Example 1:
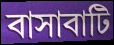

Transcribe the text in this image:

বাসাবাটি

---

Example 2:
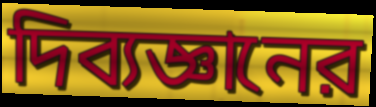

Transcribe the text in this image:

দিব্যজ্ঞানের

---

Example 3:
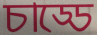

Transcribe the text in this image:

চাড্ডে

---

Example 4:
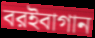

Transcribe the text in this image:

বরইবাগান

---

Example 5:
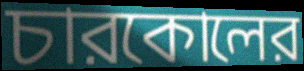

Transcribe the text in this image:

চারকোলের